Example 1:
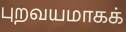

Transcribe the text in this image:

புறவயமாகக்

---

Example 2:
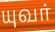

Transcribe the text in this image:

யுவர்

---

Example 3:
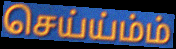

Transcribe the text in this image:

செய்ய்ம்ம்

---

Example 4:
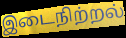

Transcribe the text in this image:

இடைநிற்றல்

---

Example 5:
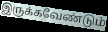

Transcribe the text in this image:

இருக்கவேண்டும்